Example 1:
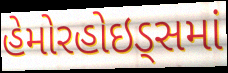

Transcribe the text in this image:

હેમોરહોઇડ્સમાં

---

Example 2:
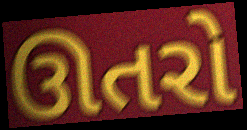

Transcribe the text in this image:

ઊતરો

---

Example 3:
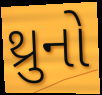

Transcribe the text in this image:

થ્રુનો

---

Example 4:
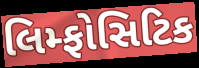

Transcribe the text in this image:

લિમ્ફોસિટિક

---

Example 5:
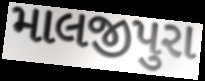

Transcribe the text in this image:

માલજીપુરા